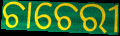
ଚାଚେରୀ